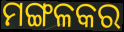
ମଙ୍ଗଳକର